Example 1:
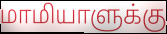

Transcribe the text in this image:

மாமியாளுக்கு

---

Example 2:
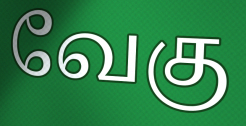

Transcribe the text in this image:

வேகு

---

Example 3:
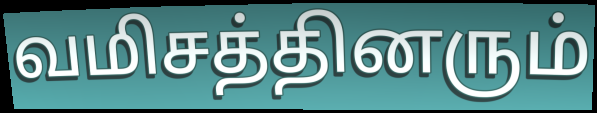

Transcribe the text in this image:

வமிசத்தினரும்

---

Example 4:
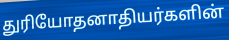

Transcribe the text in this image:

துரியோதனாதியர்களின்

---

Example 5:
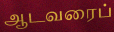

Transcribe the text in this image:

ஆடவரைப்